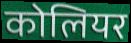
कोलियर